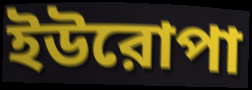
ইউরোপা